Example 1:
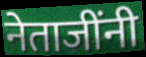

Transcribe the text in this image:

नेताजींनी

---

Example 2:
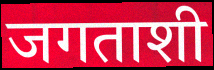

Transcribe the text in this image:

जगताशी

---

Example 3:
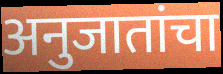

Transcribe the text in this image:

अनुजातांचा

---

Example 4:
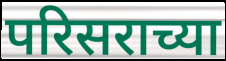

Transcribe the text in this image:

परिसराच्या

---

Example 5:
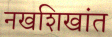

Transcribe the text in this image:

नखशिखांत